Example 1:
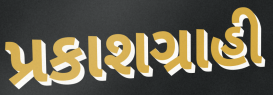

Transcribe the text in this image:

પ્રકાશગ્રાહી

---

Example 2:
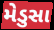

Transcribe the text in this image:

મેડુસા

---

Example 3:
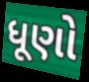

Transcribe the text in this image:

ધૂણો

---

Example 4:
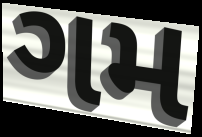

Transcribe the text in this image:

ગમ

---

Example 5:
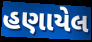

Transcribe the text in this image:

હણાયેલ